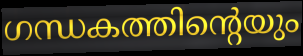
ഗന്ധകത്തിന്റെയും